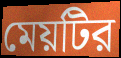
মেয়টির